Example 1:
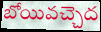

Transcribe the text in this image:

బోయివచ్చెద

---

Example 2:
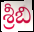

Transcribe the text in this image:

శ్రీబి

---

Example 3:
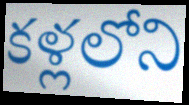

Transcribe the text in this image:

కళ్లలోని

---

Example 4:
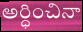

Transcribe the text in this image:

అర్ధించినా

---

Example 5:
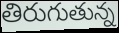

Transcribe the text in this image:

తిరుగుతున్న